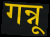
गन्नू